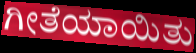
ಗೀತೆಯಾಯಿತು